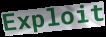
Exploit